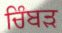
ਚਿੰਬੜ